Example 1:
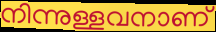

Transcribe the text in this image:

നിന്നുള്ളവനാണ്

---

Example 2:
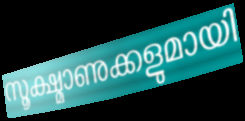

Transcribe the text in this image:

സൂക്ഷ്മാണുക്കളുമായി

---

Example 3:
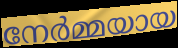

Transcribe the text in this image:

നേർമ്മയായ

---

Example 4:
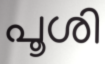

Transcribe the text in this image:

പൂശി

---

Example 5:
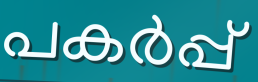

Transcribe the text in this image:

പകർപ്പ്